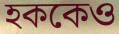
হককেও